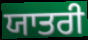
ਯਾਤਰੀ